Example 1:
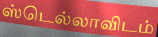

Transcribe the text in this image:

ஸ்டெல்லாவிடம்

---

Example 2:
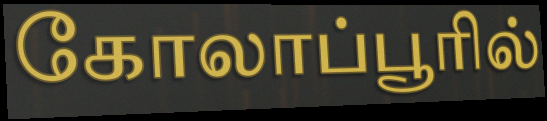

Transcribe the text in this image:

கோலாப்பூரில்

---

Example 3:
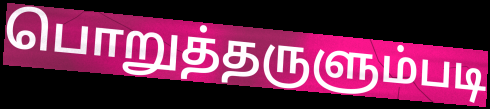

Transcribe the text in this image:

பொறுத்தருளும்படி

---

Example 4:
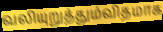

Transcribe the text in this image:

வலியுறுத்தும்விதமாக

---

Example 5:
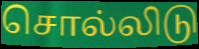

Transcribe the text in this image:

சொல்லிடு